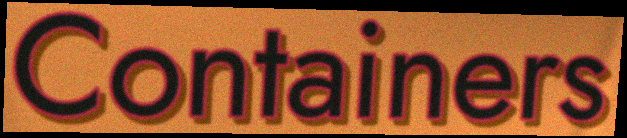
Containers